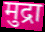
मुद्रा